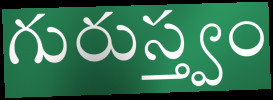
గురుస్త్వం